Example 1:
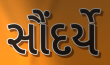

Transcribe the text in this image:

સૌંદર્યે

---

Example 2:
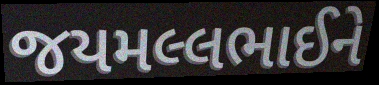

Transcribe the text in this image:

જયમલ્લભાઈને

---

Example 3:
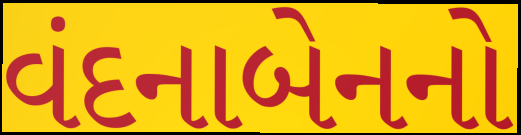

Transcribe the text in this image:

વંદનાબેનનો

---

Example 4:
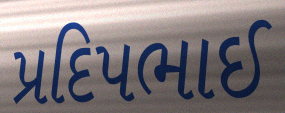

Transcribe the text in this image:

પ્રદિપભાઈ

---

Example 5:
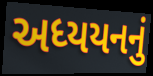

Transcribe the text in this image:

અધ્યયનનું